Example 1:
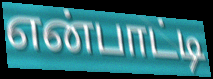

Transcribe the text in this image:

என்பாட்டி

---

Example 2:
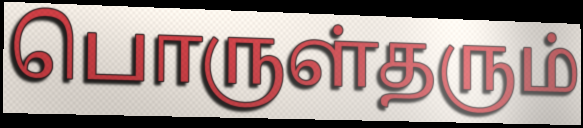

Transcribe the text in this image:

பொருள்தரும்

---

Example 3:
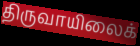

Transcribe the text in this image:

திருவாயிலைக்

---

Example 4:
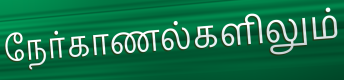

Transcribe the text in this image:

நேர்காணல்களிலும்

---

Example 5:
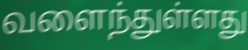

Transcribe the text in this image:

வளைந்துள்ளது